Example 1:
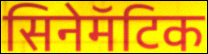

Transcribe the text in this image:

सिनेमॅटिक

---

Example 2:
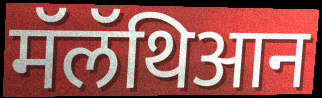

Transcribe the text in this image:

मॅलॅथिआन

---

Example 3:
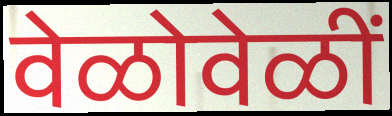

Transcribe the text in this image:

वेळोवेळीं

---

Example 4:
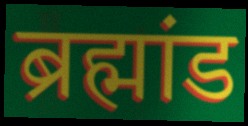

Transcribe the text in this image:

ब्रह्मांड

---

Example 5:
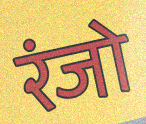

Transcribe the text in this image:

रंजो